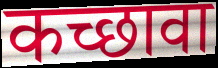
कच्छावा